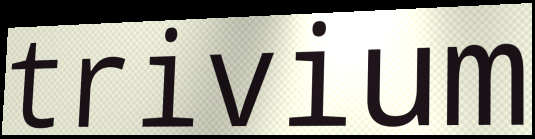
trivium